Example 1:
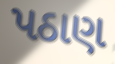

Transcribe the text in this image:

પઠાણ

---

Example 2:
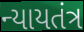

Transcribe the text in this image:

ન્યાયતંત્ર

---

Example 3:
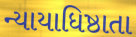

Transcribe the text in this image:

ન્યાયાધિષ્ઠાતા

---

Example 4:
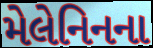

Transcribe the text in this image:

મેલેનિનના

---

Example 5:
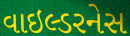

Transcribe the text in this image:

વાઇલ્ડરનેસ